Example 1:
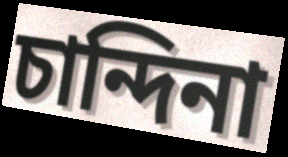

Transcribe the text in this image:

চান্দিনা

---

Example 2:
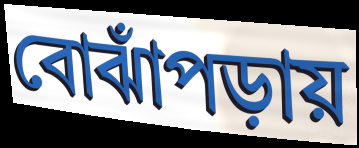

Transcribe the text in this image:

বোঝাঁপড়ায়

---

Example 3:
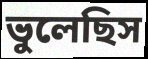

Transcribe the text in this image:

ভুলেছিস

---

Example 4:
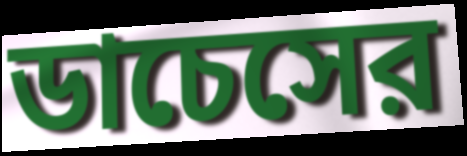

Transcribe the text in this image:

ডাচেসের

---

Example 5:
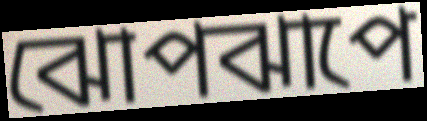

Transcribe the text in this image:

ঝোপঝাপে